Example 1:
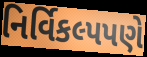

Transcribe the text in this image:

નિર્વિકલ્પપણે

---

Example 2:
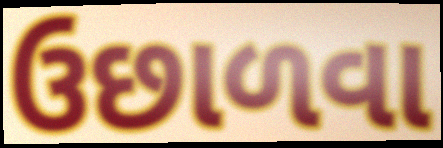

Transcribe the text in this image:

ઉછાળવા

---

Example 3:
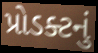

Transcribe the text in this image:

પ્રોડક્ટનું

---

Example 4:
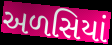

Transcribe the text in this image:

અળસિયાં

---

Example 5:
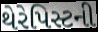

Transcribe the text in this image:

થેરેપિસ્ટની